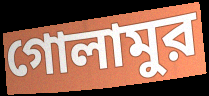
গোলামুর